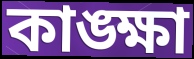
কাঙ্ক্ষা